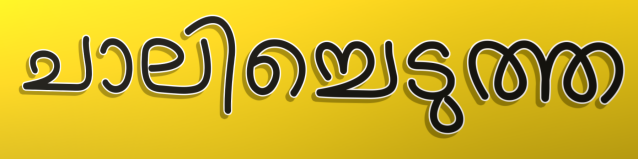
ചാലിച്ചെടുത്ത